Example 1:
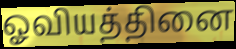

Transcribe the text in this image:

ஓவியத்தினை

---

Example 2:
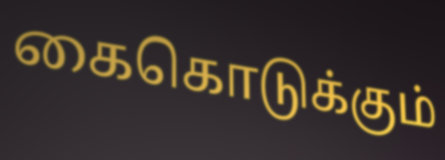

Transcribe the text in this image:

கைகொடுக்கும்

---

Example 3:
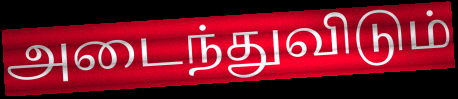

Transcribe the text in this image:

அடைந்துவிடும்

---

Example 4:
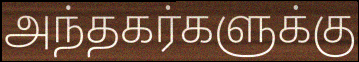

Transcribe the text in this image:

அந்தகர்களுக்கு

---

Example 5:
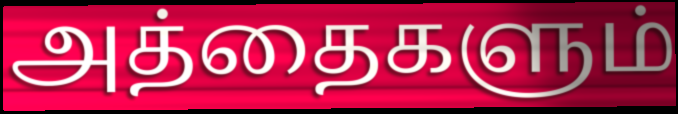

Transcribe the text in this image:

அத்தைகளும்